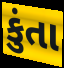
કુંતા